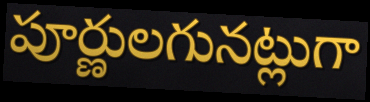
పూర్ణులగునట్లుగా